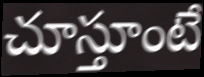
చూస్తూంటే